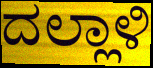
ದಲ್ಲಾಳಿ